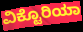
ವಿಕ್ಟೊರಿಯಾ